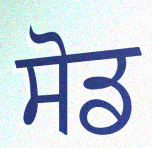
ਸੋਡ